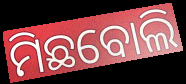
ମିଛବୋଲି